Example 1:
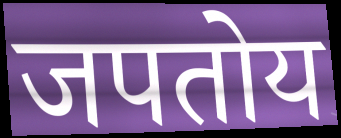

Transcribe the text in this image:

जपतोय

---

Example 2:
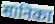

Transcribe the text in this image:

सानिका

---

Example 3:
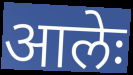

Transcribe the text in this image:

आलेः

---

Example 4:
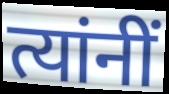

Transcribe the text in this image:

त्यांनीं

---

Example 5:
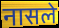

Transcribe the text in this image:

नासले